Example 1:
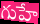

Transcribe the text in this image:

గుహే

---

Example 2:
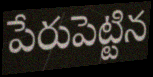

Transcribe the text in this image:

పేరుపెట్టిన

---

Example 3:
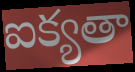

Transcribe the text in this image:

ఐక్యతా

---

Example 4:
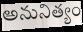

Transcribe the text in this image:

అనునిత్యం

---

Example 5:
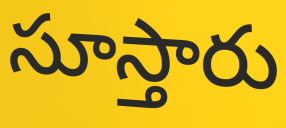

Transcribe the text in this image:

సూస్తారు